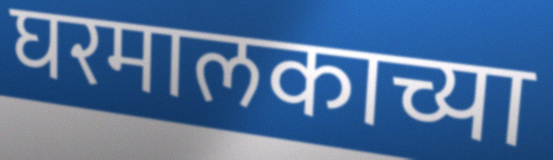
घरमालकाच्या